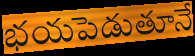
భయపెడుతూనే